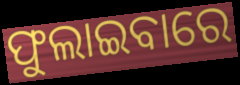
ଫୁଲାଇବାରେ